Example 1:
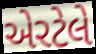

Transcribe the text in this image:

એરટેલે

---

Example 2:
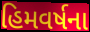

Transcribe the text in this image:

હિમવર્ષના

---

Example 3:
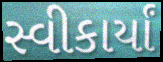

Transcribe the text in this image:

સ્વીકાર્યાં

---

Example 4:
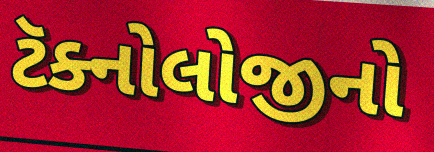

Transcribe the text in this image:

ટૅક્નોલોજીનો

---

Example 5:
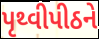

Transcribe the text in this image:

પૃથ્વીપીઠને